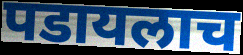
पडायलाच